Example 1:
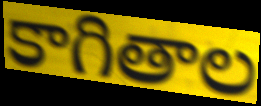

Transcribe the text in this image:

కాగితాల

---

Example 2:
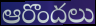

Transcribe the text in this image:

ఆరొందలు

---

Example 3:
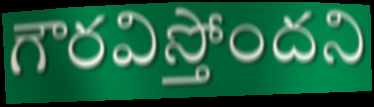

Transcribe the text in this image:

గౌరవిస్తోందని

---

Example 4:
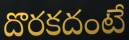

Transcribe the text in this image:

దొరకదంటే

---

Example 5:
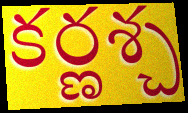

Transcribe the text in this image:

కర్ణశ్చ